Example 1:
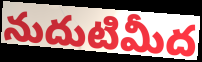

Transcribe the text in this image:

నుదుటిమీద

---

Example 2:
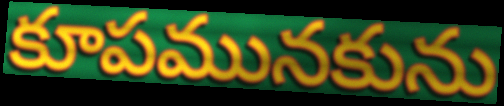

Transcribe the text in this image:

కూపమునకును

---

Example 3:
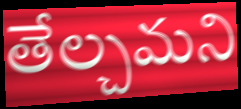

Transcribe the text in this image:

తేల్చమని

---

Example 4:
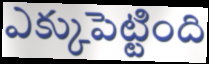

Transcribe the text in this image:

ఎక్కుపెట్టింది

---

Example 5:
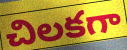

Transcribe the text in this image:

చిలకగా